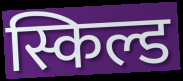
स्किल्ड